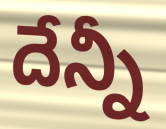
దేన్నీ